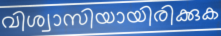
വിശ്വാസിയായിരിക്കുക